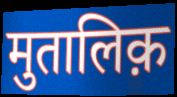
मुतालिक़